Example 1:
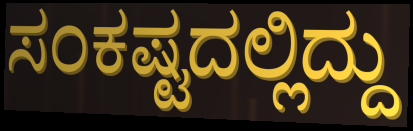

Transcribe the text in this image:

ಸಂಕಷ್ಟದಲ್ಲಿದ್ದು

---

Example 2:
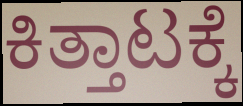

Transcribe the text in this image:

ಕಿತ್ತಾಟಕ್ಕೆ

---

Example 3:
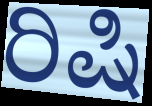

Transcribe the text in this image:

ರಿಷಿ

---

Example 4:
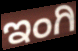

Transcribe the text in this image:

ಇಂಗಿ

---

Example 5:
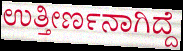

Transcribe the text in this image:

ಉತ್ತೀರ್ಣನಾಗಿದ್ದೆ